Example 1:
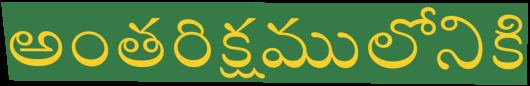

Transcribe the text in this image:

అంతరిక్షములోనికి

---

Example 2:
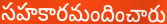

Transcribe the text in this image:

సహకారమందించారు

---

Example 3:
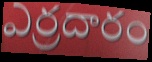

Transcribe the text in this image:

ఎర్రదారం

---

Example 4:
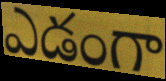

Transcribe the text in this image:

ఎడంగా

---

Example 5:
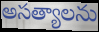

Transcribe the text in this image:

అసత్యాలను